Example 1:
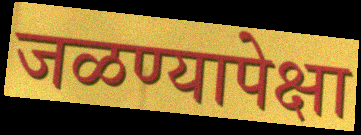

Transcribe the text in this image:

जळण्यापेक्षा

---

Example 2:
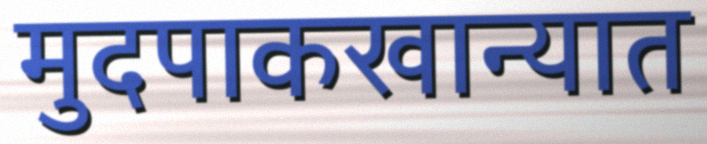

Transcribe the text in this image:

मुदपाकखान्यात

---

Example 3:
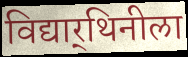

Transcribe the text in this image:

विद्यार्थिनीला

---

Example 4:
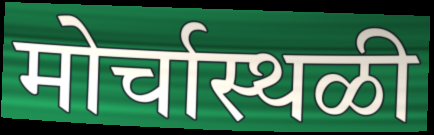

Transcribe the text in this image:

मोर्चास्थळी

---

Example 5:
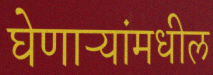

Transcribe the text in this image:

घेणाऱ्यांमधील